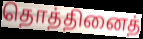
தொத்தினைத்